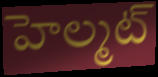
హెల్మట్